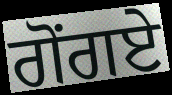
ਗੋਂਗਏ